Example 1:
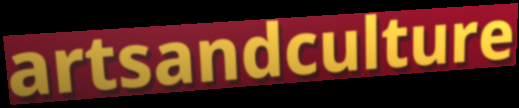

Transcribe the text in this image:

artsandculture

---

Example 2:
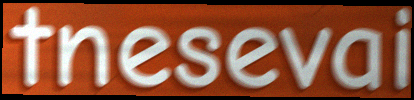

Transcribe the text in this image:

tnesevai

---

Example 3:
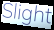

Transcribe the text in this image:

Slight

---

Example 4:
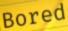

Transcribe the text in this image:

Bored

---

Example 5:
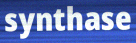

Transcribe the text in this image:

synthase